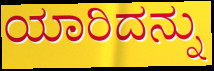
ಯಾರಿದನ್ನು